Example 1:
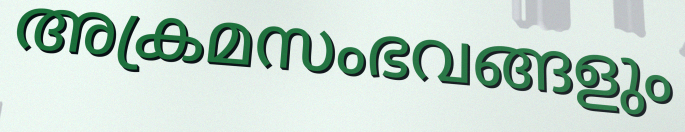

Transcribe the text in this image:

അക്രമസംഭവങ്ങളും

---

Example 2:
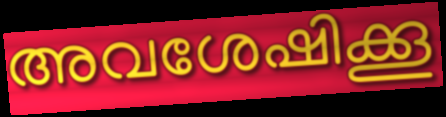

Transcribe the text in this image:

അവശേഷിക്കൂ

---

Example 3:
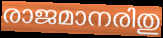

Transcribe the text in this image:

രാജമാനരിതു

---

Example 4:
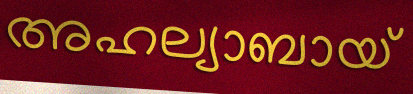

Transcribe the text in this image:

അഹല്യാബായ്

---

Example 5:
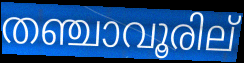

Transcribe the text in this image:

തഞ്ചാവൂരില്